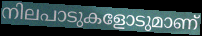
നിലപാടുകളോടുമാണ്